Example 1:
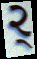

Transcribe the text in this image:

ર્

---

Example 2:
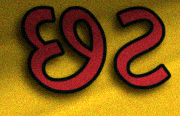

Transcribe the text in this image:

છટ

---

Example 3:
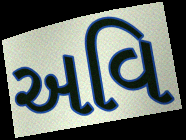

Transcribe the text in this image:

અવિ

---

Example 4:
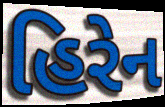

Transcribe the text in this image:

હિરેન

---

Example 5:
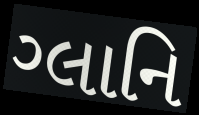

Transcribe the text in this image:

ગ્લાનિ